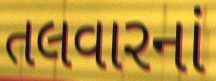
તલવારનાં